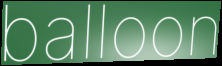
balloon